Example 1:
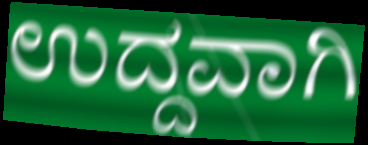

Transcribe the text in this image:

ಉದ್ದವಾಗಿ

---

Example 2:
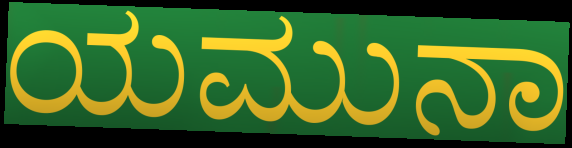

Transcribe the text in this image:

ಯಮುನಾ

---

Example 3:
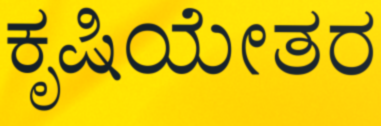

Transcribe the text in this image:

ಕೃಷಿಯೇತರ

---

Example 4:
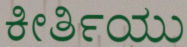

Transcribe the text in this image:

ಕೀರ್ತಿಯು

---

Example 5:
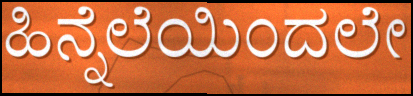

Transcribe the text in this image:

ಹಿನ್ನೆಲೆಯಿಂದಲೇ